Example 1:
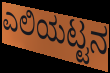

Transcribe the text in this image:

ಎಲಿಯಟ್ಟನ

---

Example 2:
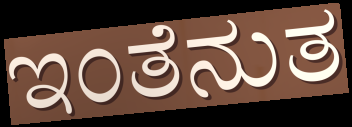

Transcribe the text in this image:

ಇಂತೆನುತ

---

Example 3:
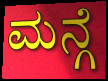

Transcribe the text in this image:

ಮನ್ಗೆ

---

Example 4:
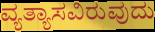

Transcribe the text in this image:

ವ್ಯತ್ಯಾಸವಿರುವುದು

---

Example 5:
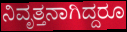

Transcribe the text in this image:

ನಿವೃತ್ತನಾಗಿದ್ದರೂ